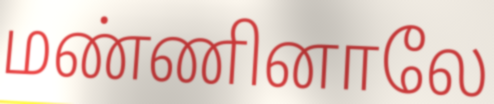
மண்ணினாலே